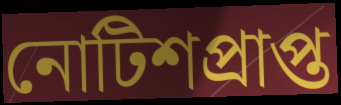
নোটিশপ্রাপ্ত